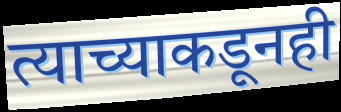
त्याच्याकडूनही